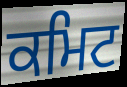
ਕਮਿਟ